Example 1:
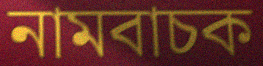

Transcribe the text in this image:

নামবাচক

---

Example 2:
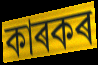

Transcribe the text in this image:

কাৰকৰ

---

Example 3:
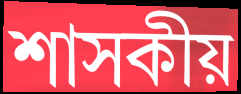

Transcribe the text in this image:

শাসকীয়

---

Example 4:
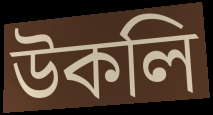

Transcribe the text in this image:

উকলি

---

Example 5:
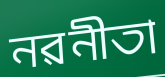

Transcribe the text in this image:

নৱনীতা